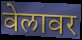
वेलावर